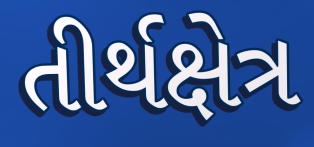
તીર્થક્ષેત્ર